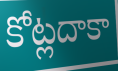
కోట్లదాకా